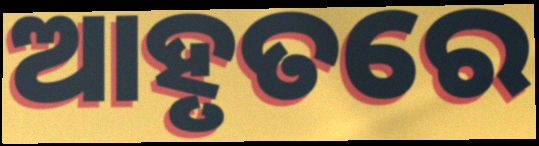
ଆହୃତରେ